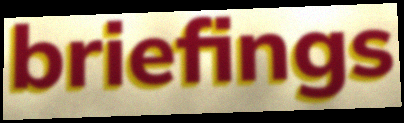
briefings